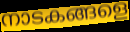
നാടകങ്ങളെ